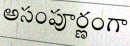
అసంపూర్ణంగా